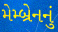
મેમ્બ્રેનનું